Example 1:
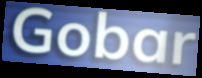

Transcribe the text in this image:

Gobar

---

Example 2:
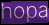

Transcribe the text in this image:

hopa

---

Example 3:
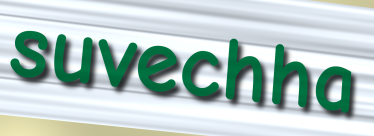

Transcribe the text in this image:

suvechha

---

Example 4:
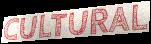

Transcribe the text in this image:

CULTURAL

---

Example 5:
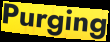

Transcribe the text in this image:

Purging